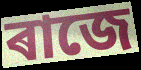
ৰাজে